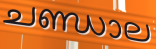
ചണ്ഡാല